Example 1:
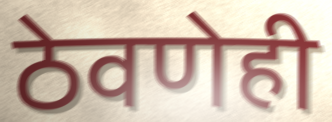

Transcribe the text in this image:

ठेवणेही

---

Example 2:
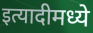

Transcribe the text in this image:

इत्यादीमध्ये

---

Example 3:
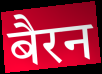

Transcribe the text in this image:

बैरन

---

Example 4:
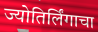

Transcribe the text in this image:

ज्योतिर्लिंगाचा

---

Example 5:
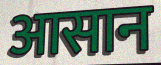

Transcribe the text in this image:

आसान